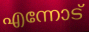
എന്നോട്